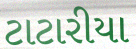
ટાટારીયા